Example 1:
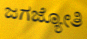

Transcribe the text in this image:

ಜಗಜ್ಯೋತಿ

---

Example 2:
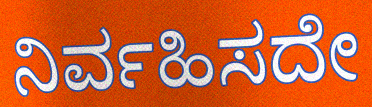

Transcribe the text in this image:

ನಿರ್ವಹಿಸದೇ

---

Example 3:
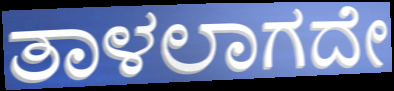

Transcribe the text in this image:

ತಾಳಲಾಗದೇ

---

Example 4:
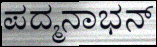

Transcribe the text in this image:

ಪದ್ಮನಾಭನ್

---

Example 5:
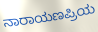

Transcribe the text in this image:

ನಾರಾಯಣಪ್ರಿಯ